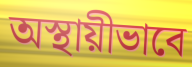
অস্থায়ীভাবে